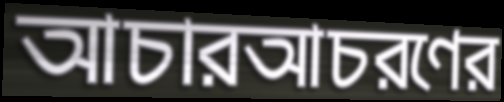
আচারআচরণের